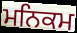
ਮਨਿਕਮ